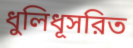
ধুলিধূসরিত